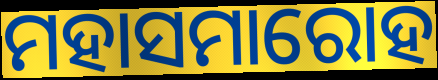
ମହାସମାରୋହ